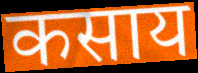
कसाय